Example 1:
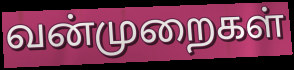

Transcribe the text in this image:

வன்முறைகள்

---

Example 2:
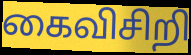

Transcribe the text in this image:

கைவிசிறி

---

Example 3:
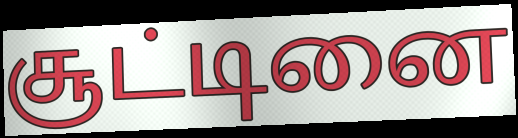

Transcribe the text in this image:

சூட்டினை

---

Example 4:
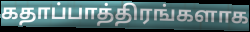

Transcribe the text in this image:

கதாப்பாத்திரங்களாக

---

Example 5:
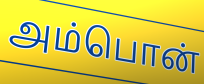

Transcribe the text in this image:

அம்பொன்